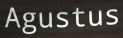
Agustus